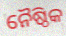
ନୈଷ୍ଠିକ